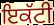
ਇਕੱਟੀ